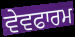
ਵੇਵਫਾਰਮ